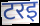
टरइ